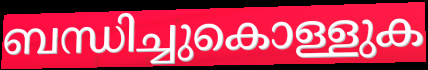
ബന്ധിച്ചുകൊള്ളുക